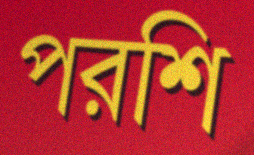
পরশি